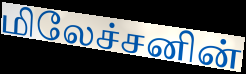
மிலேச்சனின்